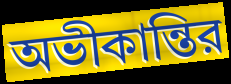
অভীকান্তির